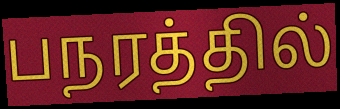
பநரத்தில்